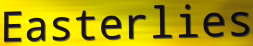
Easterlies